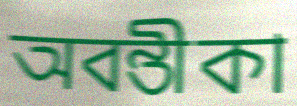
অবন্তীকা